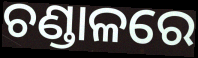
ଚଣ୍ଡାଳରେ